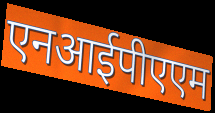
एनआईपीएएम